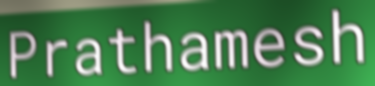
Prathamesh